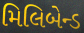
મિલિબેન્ડ